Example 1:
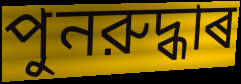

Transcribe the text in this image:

পুনৰুদ্ধাৰ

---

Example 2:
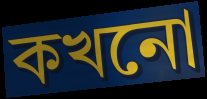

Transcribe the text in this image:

কখনো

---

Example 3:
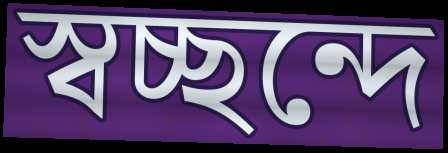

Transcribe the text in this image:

স্বচ্ছন্দে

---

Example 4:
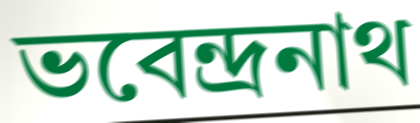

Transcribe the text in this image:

ভবেন্দ্ৰনাথ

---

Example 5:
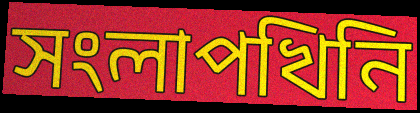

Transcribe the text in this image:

সংলাপখিনি